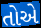
તોએ